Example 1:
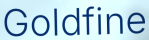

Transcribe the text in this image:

Goldfine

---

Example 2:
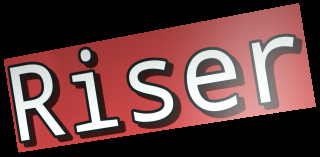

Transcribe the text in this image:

Riser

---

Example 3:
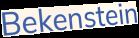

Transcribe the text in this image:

Bekenstein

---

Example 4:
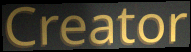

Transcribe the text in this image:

Creator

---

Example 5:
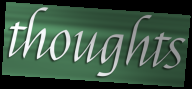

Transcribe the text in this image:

thoughts